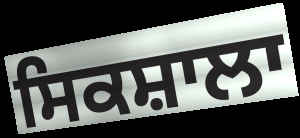
ਸਿਕਸ਼ਾਲਾ